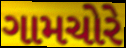
ગામચોરે